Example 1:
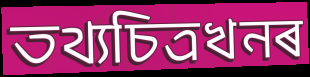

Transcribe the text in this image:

তথ্যচিত্ৰখনৰ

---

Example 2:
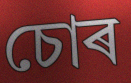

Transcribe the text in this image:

চোৰ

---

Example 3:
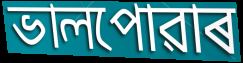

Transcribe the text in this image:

ভালপোৱাৰ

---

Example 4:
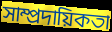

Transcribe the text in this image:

সাম্প্ৰদায়িকতা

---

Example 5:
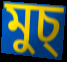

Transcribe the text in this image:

মুচ্